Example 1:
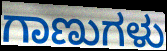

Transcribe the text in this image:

ಗಾಣುಗಳು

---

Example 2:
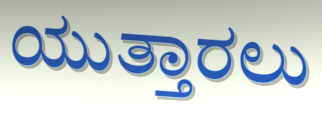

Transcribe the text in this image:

ಯುತ್ತಾರಲು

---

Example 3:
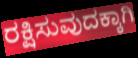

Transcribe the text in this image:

ರಕ್ಷಿಸುವುದಕ್ಕಾಗಿ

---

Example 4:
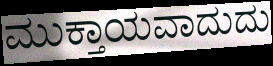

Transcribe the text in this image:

ಮುಕ್ತಾಯವಾದುದು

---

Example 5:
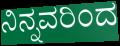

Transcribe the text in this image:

ನಿನ್ನವರಿಂದ